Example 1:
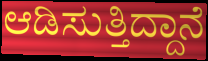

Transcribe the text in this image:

ಆಡಿಸುತ್ತಿದ್ದಾನೆ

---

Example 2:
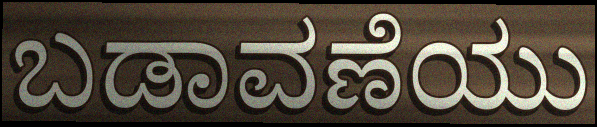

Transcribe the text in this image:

ಬಡಾವಣೆಯು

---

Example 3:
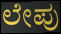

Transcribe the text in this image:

ಲೇಪು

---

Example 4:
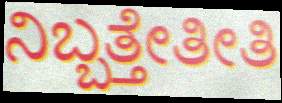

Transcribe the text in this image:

ನಿಬ್ಬತ್ತೇತೀತಿ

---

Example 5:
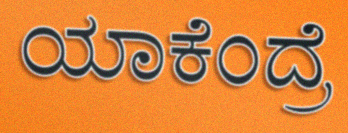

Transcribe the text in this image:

ಯಾಕೆಂದ್ರೆ